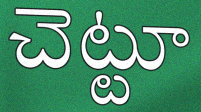
చెట్టూ